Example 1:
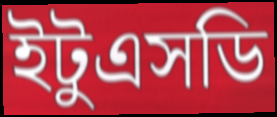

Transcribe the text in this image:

ইটুএসডি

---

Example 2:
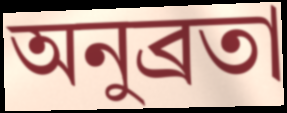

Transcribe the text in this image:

অনুব্রতা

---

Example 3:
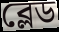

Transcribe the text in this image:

ব্লেড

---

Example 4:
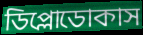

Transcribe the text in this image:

ডিপ্লোডোকাস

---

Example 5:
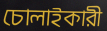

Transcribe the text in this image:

চোলাইকারী